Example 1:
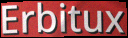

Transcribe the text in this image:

Erbitux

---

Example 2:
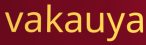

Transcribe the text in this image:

vakauya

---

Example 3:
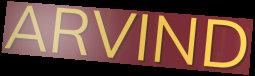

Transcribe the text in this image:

ARVIND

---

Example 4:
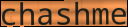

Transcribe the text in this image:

chashme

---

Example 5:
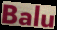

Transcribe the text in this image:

Balu